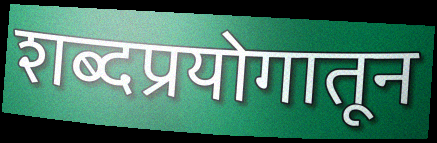
शब्दप्रयोगातून